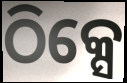
ଠିକ୍ସେ